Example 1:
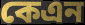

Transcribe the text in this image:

কেএন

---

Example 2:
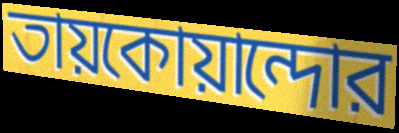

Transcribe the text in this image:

তায়কোয়ান্দোর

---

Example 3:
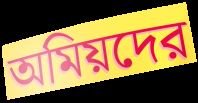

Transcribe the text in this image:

অমিয়দের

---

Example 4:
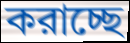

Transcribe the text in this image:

করাচ্ছে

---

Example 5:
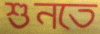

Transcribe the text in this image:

শুনতে